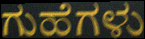
ಗುಹೆಗಳು